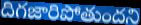
దిగజారిపోతుందని